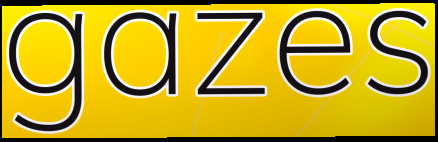
gazes